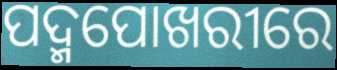
ପଦ୍ମପୋଖରୀରେ